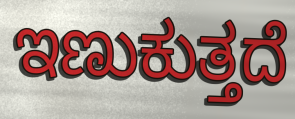
ಇಣುಕುತ್ತದೆ